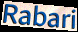
Rabari